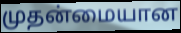
முதன்மையான